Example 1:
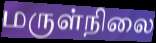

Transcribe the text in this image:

மருள்நிலை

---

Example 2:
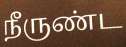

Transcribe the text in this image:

நீருண்ட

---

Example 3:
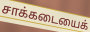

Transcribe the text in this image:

சாக்கடையைக்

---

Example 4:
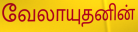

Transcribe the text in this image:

வேலாயுதனின்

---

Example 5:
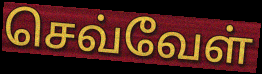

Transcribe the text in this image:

செவ்வேள்